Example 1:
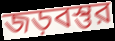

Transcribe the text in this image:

জড়বস্তুর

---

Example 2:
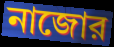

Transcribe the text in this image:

নাজোর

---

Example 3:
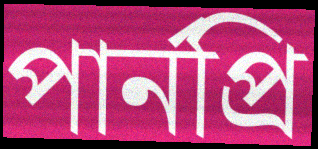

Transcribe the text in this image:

পার্নপ্রি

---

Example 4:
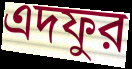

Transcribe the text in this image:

এদফুর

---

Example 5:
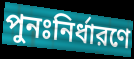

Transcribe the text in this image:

পুনঃনির্ধারণে